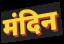
मंदिन